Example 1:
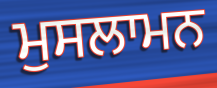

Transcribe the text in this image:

ਮੁਸਲਾਮਨ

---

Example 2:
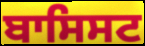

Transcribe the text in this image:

ਬਾਸਿਸਟ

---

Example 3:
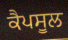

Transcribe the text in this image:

ਕੈਪਸੂਲ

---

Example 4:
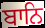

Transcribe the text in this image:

ਬਾਨਿ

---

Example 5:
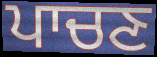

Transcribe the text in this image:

ਪਾਚਣ